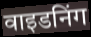
वाइडनिंग